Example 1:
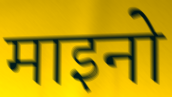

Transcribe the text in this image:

माइनो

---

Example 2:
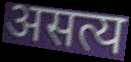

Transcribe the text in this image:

असत्य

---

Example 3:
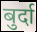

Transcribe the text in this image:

बुर्दा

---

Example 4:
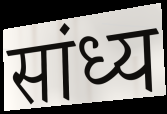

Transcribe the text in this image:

सांध्य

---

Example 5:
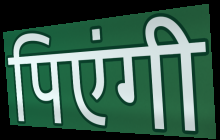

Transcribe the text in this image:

पिएंगी